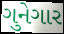
ગુનેગાર